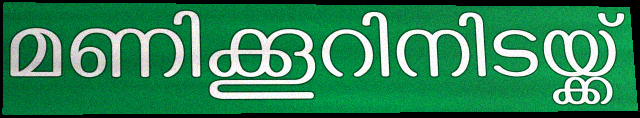
മണിക്കൂറിനിടയ്ക്ക്